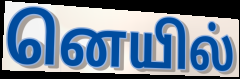
னெயில்